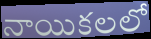
నాయికలలో